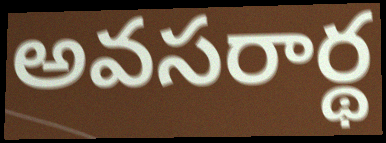
అవసరార్థ